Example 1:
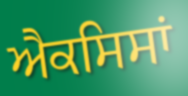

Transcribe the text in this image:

ਐਕਸਿਸਾਂ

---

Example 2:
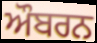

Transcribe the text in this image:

ਔਬਰਨ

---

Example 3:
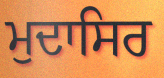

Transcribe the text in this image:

ਮੁਦਾਸਿਰ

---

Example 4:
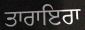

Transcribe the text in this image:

ਤਾਰਾਇਰਾ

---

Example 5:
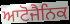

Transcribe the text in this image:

ਆਟੋਜੈਨਿਕ